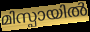
മിസ്പായിൽ